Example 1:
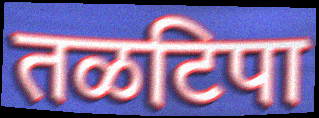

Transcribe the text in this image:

तळटिपा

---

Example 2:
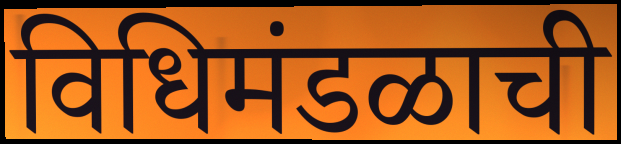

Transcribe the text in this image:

विधिमंडळाची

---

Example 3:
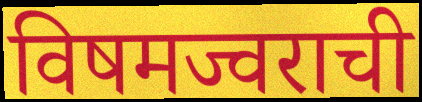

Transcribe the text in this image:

विषमज्वराची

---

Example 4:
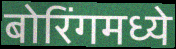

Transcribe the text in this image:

बोरिंगमध्ये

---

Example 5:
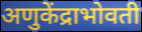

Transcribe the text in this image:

अणुकेंद्राभोवती